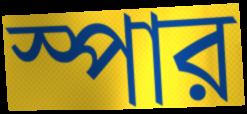
স্পার